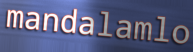
mandalamlo